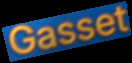
Gasset